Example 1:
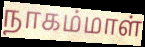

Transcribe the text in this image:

நாகம்மாள்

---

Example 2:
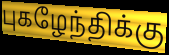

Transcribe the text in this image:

புகழேந்திக்கு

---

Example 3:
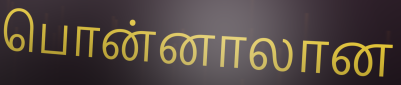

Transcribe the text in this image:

பொன்னாலான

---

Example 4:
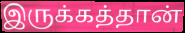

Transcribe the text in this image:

இருக்கத்தான்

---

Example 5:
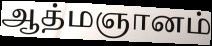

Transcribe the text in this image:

ஆத்மஞானம்